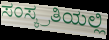
ಸಂಸ್ಕ್ರತಿಯಲ್ಲಿ